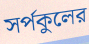
সর্পকুলের